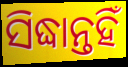
ସିଦ୍ଧାନ୍ତହିଁ